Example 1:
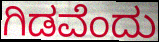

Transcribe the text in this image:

ಗಿಡವೆಂದು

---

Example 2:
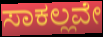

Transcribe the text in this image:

ಸಾಕಲ್ಲವೇ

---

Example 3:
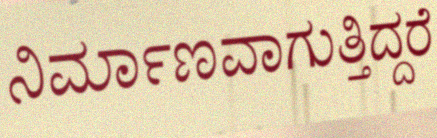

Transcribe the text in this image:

ನಿರ್ಮಾಣವಾಗುತ್ತಿದ್ದರೆ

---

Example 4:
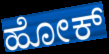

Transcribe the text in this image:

ಹೋಕ್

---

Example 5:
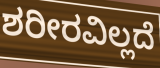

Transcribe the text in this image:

ಶರೀರವಿಲ್ಲದೆ